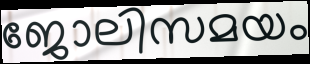
ജോലിസമയം